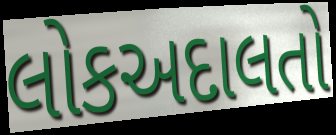
લોકઅદાલતો